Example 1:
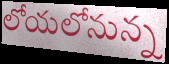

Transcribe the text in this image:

లోయలోనున్న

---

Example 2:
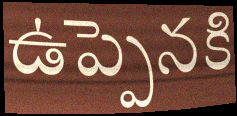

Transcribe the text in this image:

ఉప్పెనకి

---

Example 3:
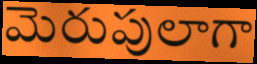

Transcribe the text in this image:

మెరుపులాగా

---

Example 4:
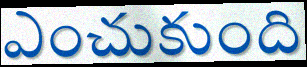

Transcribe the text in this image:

ఎంచుకుంది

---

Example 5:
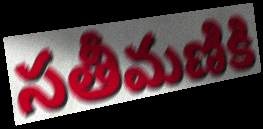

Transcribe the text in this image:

సతీమణికి